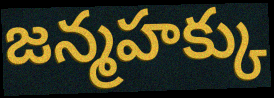
జన్మహక్కు